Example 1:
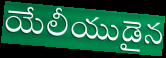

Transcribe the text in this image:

యేలీయుడైన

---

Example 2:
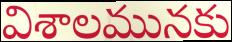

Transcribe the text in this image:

విశాలమునకు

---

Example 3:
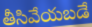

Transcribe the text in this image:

తీసివేయబడే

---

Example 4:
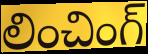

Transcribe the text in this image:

లించింగ్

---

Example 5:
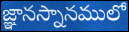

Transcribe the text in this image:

జ్ఞానస్నానములో